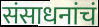
संसाधनांचं